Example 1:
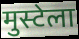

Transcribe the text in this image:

मुस्टेला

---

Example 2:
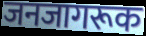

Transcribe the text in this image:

जनजागरूक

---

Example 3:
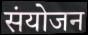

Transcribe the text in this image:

संयोजन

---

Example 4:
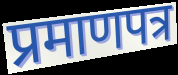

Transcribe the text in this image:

प्रमाणपत्र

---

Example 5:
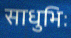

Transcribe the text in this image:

साधुभिः